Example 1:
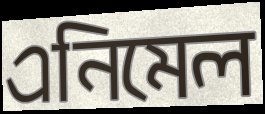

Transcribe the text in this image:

এনিমেল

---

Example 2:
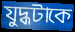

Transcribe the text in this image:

যুদ্ধটাকে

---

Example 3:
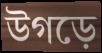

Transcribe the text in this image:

উগড়ে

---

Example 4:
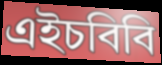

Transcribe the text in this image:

এইচবিবি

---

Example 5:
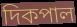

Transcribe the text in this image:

দিকপাল